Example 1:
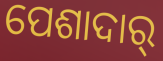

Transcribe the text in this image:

ପେଶାଦାର୍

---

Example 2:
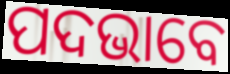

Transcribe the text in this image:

ପଦଭାବେ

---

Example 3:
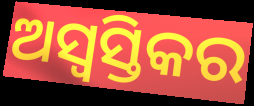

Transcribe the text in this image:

ଅସ୍ୱସ୍ତିକର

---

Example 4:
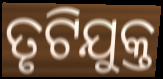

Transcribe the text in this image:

ତୃଟିଯୁକ୍ତ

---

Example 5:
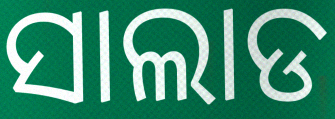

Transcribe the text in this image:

ସାଲାଡ